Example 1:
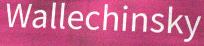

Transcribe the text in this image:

Wallechinsky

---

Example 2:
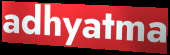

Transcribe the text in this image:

adhyatma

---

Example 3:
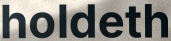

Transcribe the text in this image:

holdeth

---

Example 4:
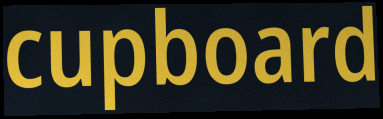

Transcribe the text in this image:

cupboard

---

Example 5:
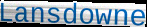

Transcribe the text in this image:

Lansdowne